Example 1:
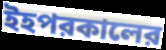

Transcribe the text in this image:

ইহপরকালের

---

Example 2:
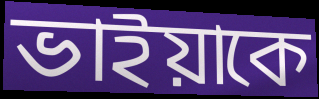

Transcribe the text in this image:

ভাইয়াকে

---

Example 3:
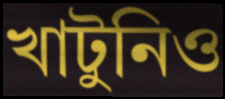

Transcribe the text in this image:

খাটুনিও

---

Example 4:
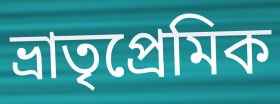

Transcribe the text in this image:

ভ্রাতৃপ্রেমিক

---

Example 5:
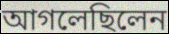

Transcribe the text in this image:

আগলেছিলেন